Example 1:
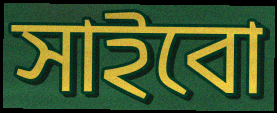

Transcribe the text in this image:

সাইবো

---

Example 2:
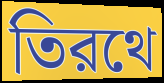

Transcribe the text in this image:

তিরথে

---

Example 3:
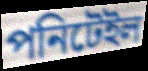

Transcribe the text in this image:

পনিটেইল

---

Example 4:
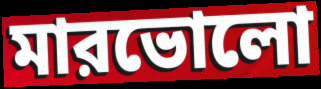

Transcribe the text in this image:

মারভোলো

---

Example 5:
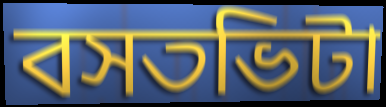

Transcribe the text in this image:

বসতভিটা